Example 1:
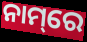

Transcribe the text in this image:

ନାମ୍‌ରେ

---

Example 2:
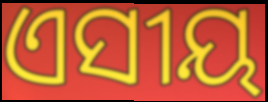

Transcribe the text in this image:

ଏସୀୟ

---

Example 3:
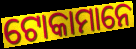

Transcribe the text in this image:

ଟୋକାମାନେ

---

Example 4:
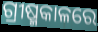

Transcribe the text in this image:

ଗ୍ରୀଷ୍ମକାଳରେ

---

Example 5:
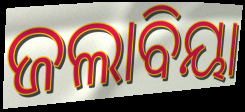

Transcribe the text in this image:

ଜଲାବିୟା